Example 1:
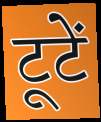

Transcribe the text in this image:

टूटें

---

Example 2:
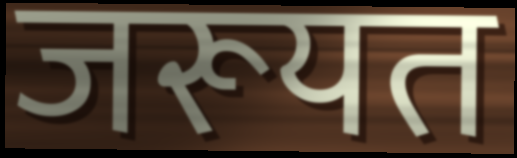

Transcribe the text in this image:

जरूयत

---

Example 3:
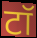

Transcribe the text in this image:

टॉ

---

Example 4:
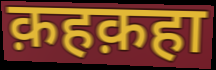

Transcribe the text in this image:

क़हक़हा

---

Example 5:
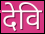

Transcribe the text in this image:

देवि